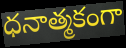
ధనాత్మకంగా